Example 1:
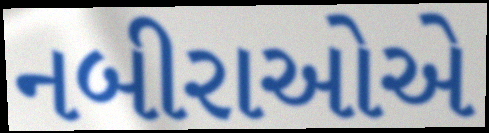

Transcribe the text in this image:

નબીરાઓએ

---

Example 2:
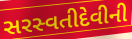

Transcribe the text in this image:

સરસ્વતીદેવીની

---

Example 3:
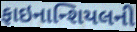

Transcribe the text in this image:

ફાઇનાન્શિયલની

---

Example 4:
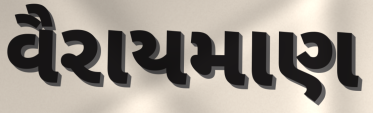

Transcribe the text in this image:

વૈરાયમાણ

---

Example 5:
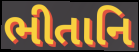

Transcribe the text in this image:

ભીતાનિ